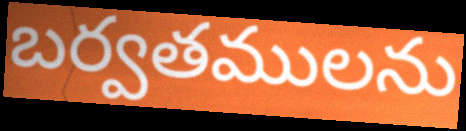
బర్వతములను